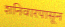
शनिवारपासून